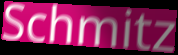
Schmitz